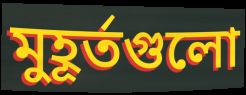
মুহূর্তগুলো